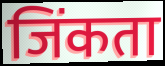
जिंकता